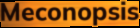
Meconopsis